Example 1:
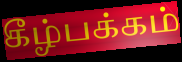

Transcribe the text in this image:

கீழ்பக்கம்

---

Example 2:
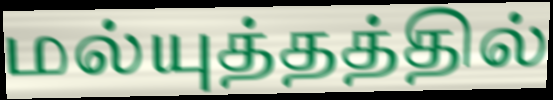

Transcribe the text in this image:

மல்யுத்தத்தில்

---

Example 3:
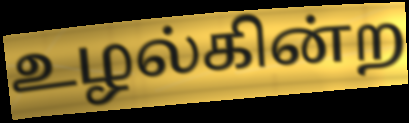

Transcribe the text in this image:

உழல்கின்ற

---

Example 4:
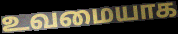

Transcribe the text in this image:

உவமையாக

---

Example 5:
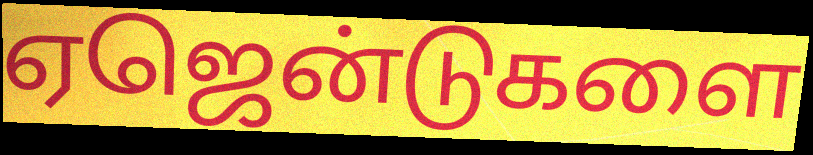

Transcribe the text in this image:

ஏஜென்டுகளை